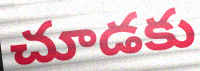
చూడకు